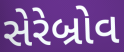
સેરેબ્રોવ